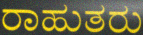
ರಾಹುತರು